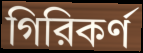
গিরিকর্ণ